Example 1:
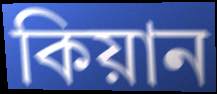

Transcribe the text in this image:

কিয়ান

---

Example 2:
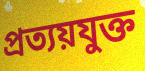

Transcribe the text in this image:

প্রত্যয়যুক্ত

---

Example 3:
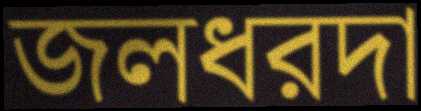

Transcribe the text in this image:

জলধরদা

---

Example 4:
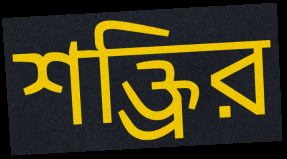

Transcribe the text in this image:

শক্ত্রির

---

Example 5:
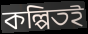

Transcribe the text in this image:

কল্পিতই